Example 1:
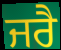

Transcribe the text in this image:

ਜਰੈ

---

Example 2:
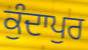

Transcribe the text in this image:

ਕੁੰਦਾਪੁਰ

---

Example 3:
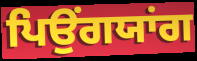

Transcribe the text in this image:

ਪਿਉਂਗਯਾਂਗ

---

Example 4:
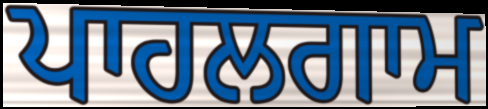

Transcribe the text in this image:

ਪਾਹਲਗਾਮ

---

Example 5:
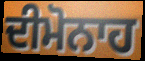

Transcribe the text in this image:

ਦੀਮੋਨਾਹ